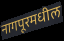
नागपूरमधील